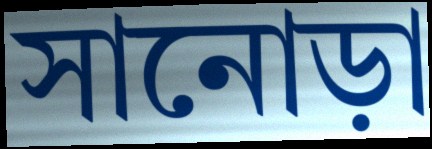
সানোড়া